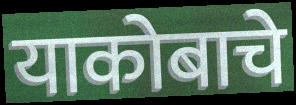
याकोबाचे